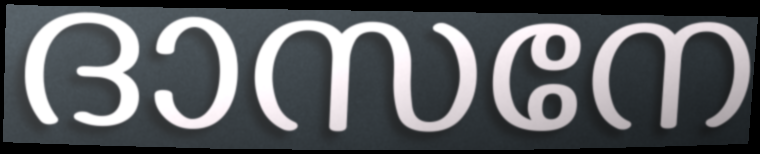
ദാസനേ